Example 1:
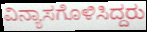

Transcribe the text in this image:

ವಿನ್ಯಾಸಗೊಳಿಸಿದ್ದರು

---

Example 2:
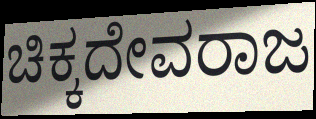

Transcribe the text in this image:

ಚಿಕ್ಕದೇವರಾಜ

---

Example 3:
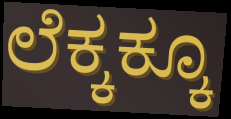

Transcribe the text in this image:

ಲೆಕ್ಕಕ್ಕೂ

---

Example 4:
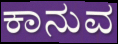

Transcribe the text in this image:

ಕಾನುವ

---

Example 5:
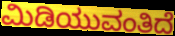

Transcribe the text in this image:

ಮಿಡಿಯುವಂತಿದೆ